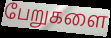
பேறுகளை